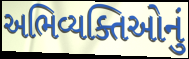
અભિવ્યક્તિઓનું